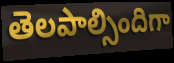
తెలపాల్సిందిగా